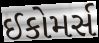
ઈકોમર્સ